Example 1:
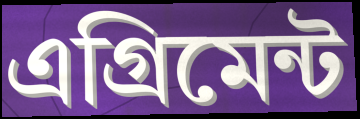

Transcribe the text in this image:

এগ্রিমেন্ট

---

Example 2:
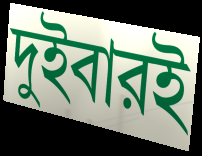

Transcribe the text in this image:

দুইবারই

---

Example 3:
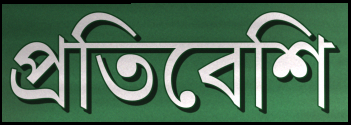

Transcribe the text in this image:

প্রতিবেশি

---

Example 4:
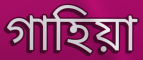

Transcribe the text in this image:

গাহিয়া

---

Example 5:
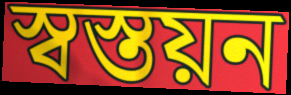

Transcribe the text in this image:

স্বস্তয়ন